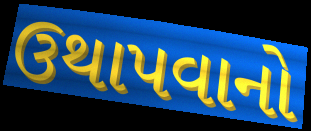
ઉથાપવાનો